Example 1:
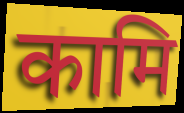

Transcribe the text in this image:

कामि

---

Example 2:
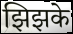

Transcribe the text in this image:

झिझके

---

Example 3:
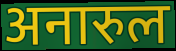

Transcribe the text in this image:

अनारुल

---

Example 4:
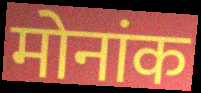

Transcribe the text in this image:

मोनांक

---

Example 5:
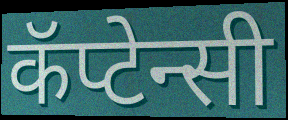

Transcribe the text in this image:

कॅप्टेन्सी